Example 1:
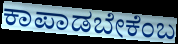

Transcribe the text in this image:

ಕಾಪಾಡಬೇಕೆಂಬ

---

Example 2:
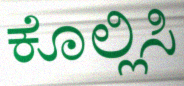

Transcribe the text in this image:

ಕೊಲ್ಲಿಸಿ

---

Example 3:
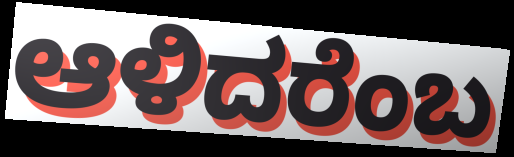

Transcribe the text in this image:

ಆಳಿದರೆಂಬ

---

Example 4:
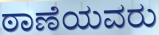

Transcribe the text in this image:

ಠಾಣೆಯವರು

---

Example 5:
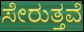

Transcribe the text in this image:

ಸೇರುತ್ತವೆ